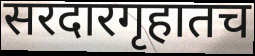
सरदारगृहातच